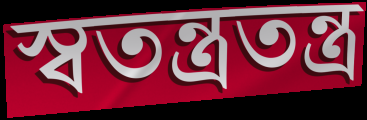
স্বতন্ত্ৰতন্ত্ৰ